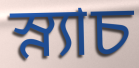
স্ন্যাচ